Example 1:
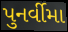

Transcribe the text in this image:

પુનર્વીમા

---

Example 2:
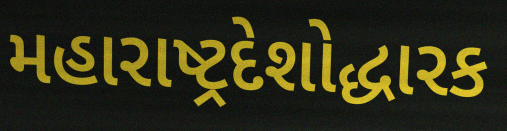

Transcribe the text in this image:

મહારાષ્ટ્રદેશોદ્ધારક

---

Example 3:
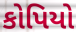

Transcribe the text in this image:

કોપિયો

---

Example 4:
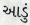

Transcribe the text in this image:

આડું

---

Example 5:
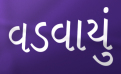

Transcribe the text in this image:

વડવાયું